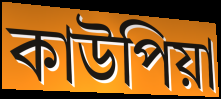
কাউপিয়া